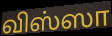
விஸ்ஸா